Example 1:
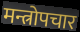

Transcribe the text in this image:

मन्त्रोपचार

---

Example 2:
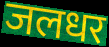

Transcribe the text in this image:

जलधर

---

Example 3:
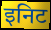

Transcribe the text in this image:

इनिट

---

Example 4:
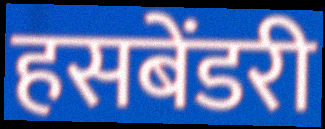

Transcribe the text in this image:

हसबेंडरी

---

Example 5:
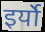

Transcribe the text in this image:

इर्यो